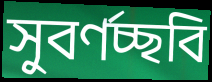
সুবর্ণচ্ছবি